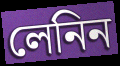
লেনিন